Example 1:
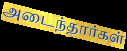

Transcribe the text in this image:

அடைந்தார்கள்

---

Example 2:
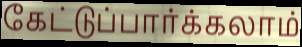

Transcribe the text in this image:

கேட்டுப்பார்க்கலாம்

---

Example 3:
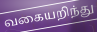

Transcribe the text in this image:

வகையறிந்து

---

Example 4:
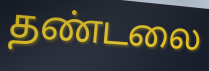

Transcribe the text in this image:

தண்டலை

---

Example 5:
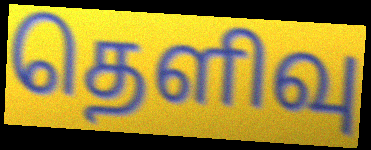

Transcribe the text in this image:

தெளிவு